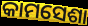
କାମସେଶା